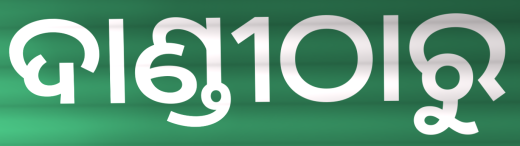
ଦାଣ୍ଡୀଠାରୁ